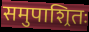
समुपाश्रितः